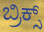
ಬ್ರಿಕ್ಸ್